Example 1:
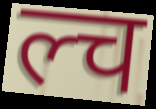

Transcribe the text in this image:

ल्च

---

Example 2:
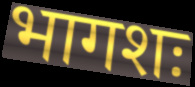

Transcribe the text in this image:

भागशः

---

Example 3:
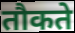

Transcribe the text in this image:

तौकते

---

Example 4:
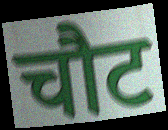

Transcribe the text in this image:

चौट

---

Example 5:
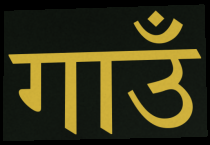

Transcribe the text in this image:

गाउँ